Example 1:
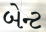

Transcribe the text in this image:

બેન્ટ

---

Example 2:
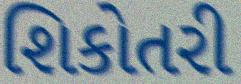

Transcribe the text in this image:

શિકોતરી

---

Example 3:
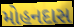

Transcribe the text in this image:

મોહનદાસ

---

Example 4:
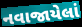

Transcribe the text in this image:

નવાજાયેલાં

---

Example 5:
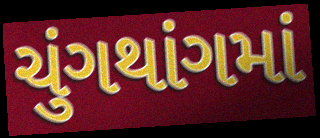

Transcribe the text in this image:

ચુંગથાંગમાં